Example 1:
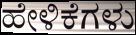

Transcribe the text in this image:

ಹೇಳಿಕೆಗಳು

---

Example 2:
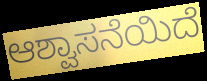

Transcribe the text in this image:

ಆಶ್ವಾಸನೆಯಿದೆ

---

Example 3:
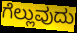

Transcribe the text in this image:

ಗೆಲ್ಲುವುದು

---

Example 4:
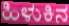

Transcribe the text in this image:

ಹಿಳುಕಿನ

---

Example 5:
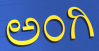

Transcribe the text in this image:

ಅಂಗಿ